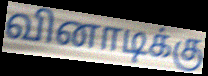
வினாடிக்கு